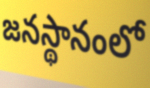
జనస్థానంలో